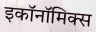
इकॉनॉमिक्‍स